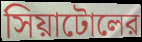
সিয়াটোলের